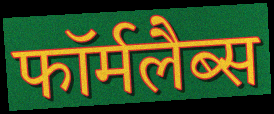
फॉर्मलैब्स